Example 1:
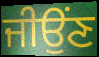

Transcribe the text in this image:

ਜੀਉਂਣ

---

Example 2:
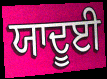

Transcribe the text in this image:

ਯਾਦੂਈ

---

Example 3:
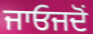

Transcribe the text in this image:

ਜਾਓਜਦੋਂ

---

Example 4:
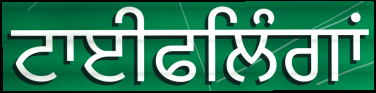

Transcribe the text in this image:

ਟਾਈਫਲਿੰਗਾਂ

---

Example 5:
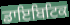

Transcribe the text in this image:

ਡਾਇਬਿਟਿਕ